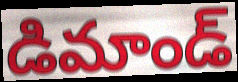
డిమాండ్